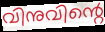
വിനുവിന്റെ